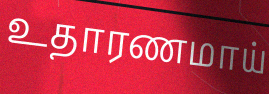
உதாரணமாய்